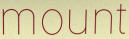
mount